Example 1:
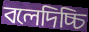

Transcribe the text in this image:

বলেদিচ্চি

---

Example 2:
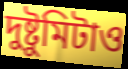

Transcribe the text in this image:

দুষ্টুমিটাও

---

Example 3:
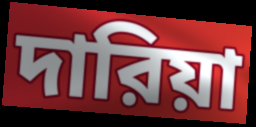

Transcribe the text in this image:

দারিয়া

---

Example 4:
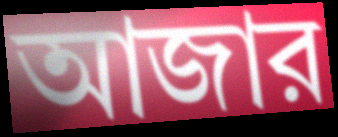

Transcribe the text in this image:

আজার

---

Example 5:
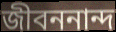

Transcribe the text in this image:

জীবননান্দ